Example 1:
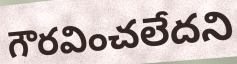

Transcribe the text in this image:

గౌరవించలేదని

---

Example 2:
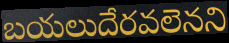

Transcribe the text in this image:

బయలుదేరవలెనని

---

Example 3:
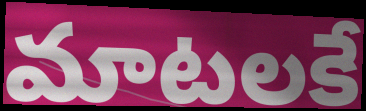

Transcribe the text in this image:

మాటలకే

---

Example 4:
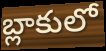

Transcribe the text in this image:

బ్లాకులో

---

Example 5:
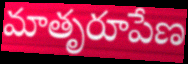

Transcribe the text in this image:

మాతృరూపేణ